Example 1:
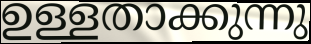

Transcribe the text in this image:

ഉള്ളതാക്കുന്നു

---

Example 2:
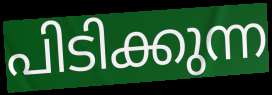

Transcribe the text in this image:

പിടിക്കുന്ന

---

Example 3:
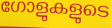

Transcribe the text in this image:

ഗോളുകളുടെ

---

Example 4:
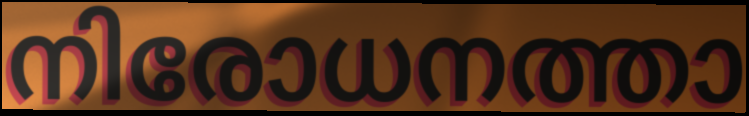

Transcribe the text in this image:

നിരോധനത്താ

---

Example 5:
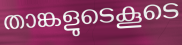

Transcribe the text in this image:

താങ്കളുടെകൂടെ